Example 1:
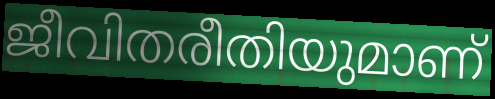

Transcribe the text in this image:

ജീവിതരീതിയുമാണ്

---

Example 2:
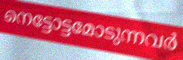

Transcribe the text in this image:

നെട്ടോട്ടമോടുന്നവർ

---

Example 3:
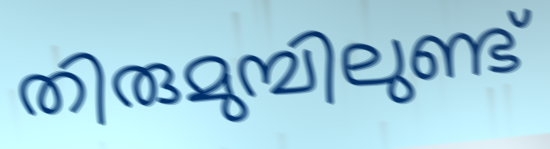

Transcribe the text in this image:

തിരുമുമ്പിലുണ്ട്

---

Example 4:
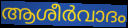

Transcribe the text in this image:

ആശീർവാദം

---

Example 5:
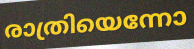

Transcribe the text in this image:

രാത്രിയെന്നോ